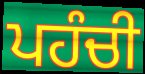
ਪਹੰਚੀ